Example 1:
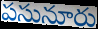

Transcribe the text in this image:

పసునూరు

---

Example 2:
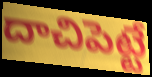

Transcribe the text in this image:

దాచిపెట్టే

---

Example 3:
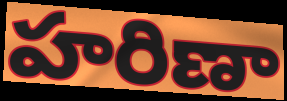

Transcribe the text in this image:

హరిణా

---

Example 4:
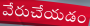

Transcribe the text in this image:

వేరుచేయడం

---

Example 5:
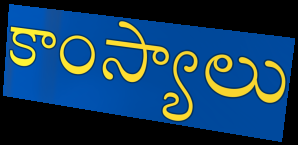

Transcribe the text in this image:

కాంస్యాలు